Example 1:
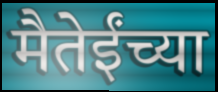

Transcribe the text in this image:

मैतेईंच्या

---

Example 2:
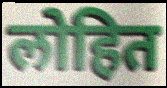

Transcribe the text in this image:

लोहित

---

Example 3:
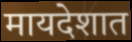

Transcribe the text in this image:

मायदेशात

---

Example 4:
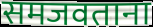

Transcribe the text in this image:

समजवताना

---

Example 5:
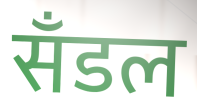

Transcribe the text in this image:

सँडल